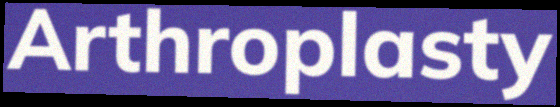
Arthroplasty